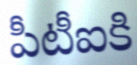
పీటీఐకి